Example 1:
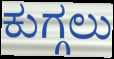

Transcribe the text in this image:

ಕುಗ್ಗಲು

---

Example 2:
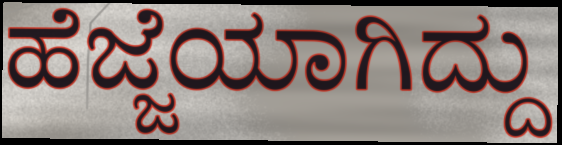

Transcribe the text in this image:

ಹೆಜ್ಜೆಯಾಗಿದ್ದು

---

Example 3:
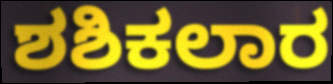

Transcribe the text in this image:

ಶಶಿಕಲಾರ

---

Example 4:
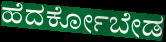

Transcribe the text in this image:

ಹೆದರ್ಕೋಬೇಡ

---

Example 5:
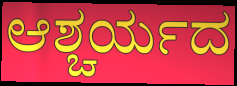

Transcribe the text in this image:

ಆಶ್ಚರ್ಯದ